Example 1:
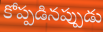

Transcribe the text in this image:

కోప్పడినప్పుడు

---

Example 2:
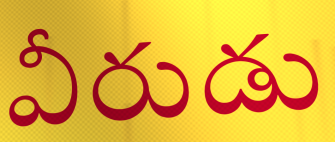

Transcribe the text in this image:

వీరుడు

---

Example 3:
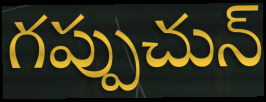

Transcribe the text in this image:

గప్పుచున్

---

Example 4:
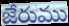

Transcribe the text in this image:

జేరుము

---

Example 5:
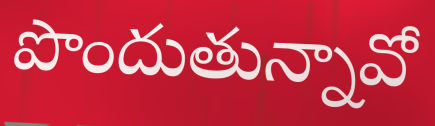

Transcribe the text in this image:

పొందుతున్నావో